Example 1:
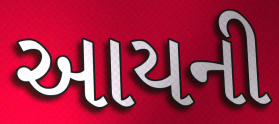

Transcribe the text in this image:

આયની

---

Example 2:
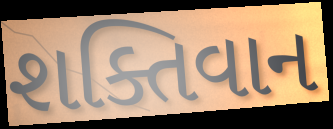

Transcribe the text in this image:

શક્તિવાન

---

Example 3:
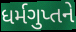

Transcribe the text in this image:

ધર્મગુપ્તને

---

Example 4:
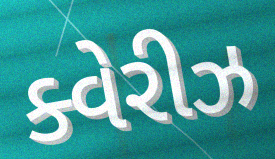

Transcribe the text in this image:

ક્વેરીઝ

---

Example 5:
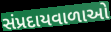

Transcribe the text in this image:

સંપ્રદાયવાળાઓ